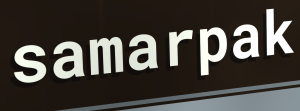
samarpak